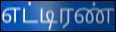
எட்டிரண்